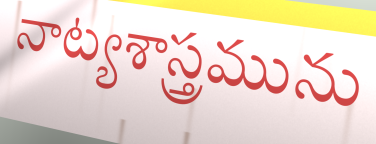
నాట్యశాస్త్రమును